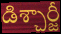
డిశ్చార్జీ